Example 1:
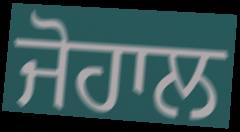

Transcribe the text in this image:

ਜੋਹਾਲ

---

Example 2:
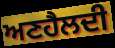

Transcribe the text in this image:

ਅਣਹੈਲਦੀ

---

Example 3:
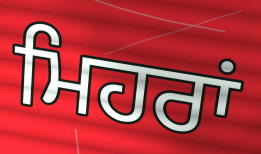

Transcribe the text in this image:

ਮਿਹਰਾਂ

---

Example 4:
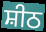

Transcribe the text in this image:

ਸ਼ੀਠ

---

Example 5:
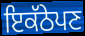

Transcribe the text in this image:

ਇਕੱਠੇਪਣ